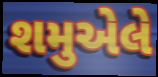
શમુએલે